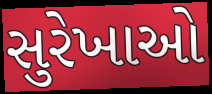
સુરેખાઓ